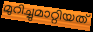
മുറിച്ചുമാറ്റിയത്